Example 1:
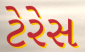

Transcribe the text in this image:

ટેરેસ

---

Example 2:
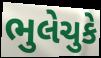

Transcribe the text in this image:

ભુલેચુકે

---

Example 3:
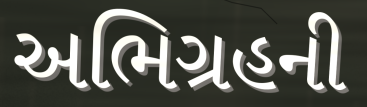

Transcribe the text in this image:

અભિગ્રહની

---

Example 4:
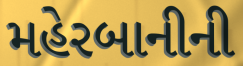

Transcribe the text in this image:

મહેરબાનીની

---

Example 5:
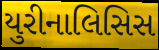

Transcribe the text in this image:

યુરીનાલિસિસ